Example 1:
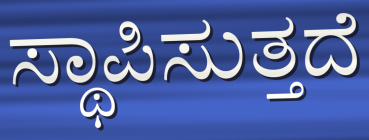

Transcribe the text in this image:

ಸ್ಥಾಪಿಸುತ್ತದೆ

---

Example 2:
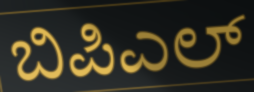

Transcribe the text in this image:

ಬಿಪಿಎಲ್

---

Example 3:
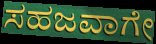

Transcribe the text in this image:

ಸಹಜವಾಗೇ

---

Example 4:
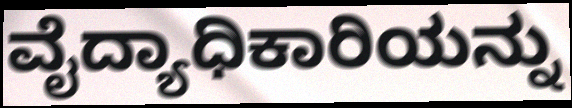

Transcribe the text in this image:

ವೈದ್ಯಾಧಿಕಾರಿಯನ್ನು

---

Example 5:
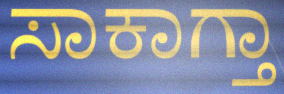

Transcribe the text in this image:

ಸಾಕಾಗ್ತಾ